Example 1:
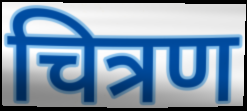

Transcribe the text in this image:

चित्रण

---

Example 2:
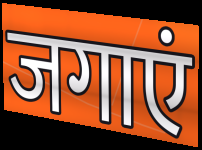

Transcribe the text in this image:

जगाएं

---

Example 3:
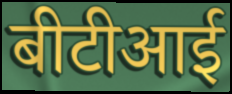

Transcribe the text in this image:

बीटीआई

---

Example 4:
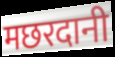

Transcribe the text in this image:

मछरदानी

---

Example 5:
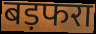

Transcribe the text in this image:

बड़फरा